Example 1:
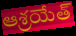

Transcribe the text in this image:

ఆశ్రయేత్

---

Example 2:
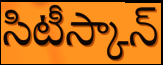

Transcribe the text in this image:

సిటీస్కాన్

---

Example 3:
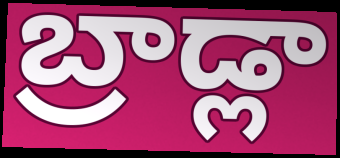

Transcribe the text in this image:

బ్రాడ్లా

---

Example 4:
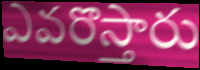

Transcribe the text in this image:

ఎవరొస్తారు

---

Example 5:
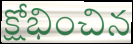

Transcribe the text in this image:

క్షోభించిన